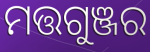
ମତ୍ତଗୁଞ୍ଜର